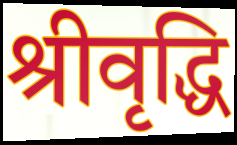
श्रीवृद्धि